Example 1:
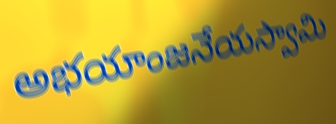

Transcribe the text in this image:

అభయాంజనేయస్వామి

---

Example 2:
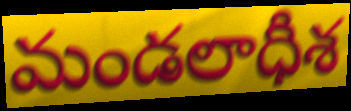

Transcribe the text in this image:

మండలాధీశ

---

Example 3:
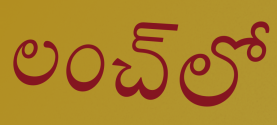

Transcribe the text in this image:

లంచ్‌లో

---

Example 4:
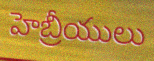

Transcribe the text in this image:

హెబ్రీయులు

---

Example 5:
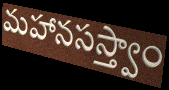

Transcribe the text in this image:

మహానసస్త్వాం